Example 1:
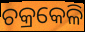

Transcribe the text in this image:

ଚକ୍ରକେଳି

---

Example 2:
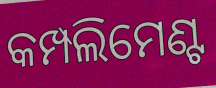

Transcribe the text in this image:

କମ୍ପଲିମେଣ୍ଟ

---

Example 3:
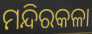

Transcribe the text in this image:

ମନ୍ଦିରକଳା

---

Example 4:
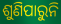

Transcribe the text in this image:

ଶୁଣିପାରୁନି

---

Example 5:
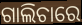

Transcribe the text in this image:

ଗାଲିଚାରେ